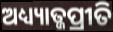
ଅଧ୍ୟ୍ୟାତ୍ଜପ୍ରୀତି